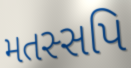
મતસ્સપિ